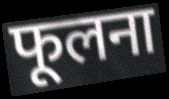
फूलना